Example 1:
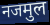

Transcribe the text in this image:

नजमुल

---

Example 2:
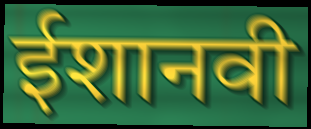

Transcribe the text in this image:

ईशानवी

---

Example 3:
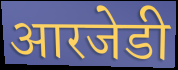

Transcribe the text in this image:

आरजेडी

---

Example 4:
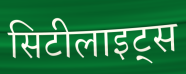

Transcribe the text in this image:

सिटीलाइट्स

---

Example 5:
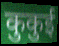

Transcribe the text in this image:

कुकुई